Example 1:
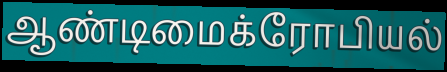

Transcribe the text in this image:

ஆண்டிமைக்ரோபியல்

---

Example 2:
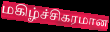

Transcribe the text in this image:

மகிழ்ச்சிகரமான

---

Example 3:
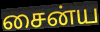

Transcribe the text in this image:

சைன்ய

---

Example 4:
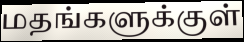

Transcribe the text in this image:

மதங்களுக்குள்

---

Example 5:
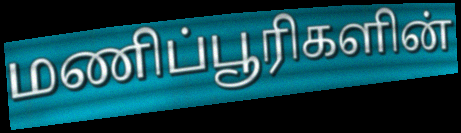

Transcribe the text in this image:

மணிப்பூரிகளின்